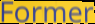
Former